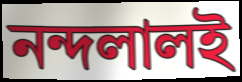
নন্দলালই